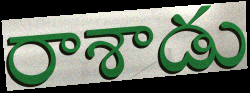
రాశాడు